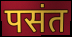
पसंत